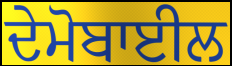
ਦੇਮੋਬਾਈਲ